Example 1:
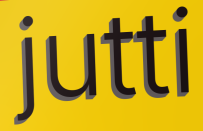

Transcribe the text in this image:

jutti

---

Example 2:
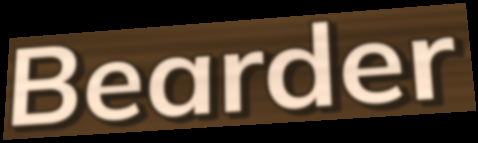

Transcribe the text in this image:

Bearder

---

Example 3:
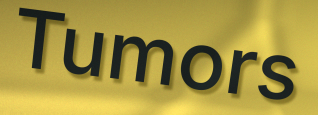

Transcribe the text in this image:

Tumors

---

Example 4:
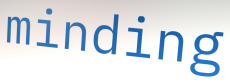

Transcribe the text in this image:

minding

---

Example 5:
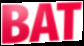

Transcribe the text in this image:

BAT